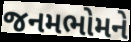
જનમભોમને